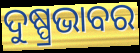
ଦୁଷ୍ପ୍ରଭାବର